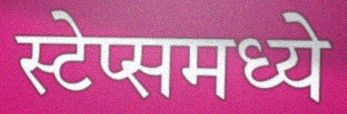
स्टेप्समध्ये